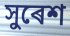
সুৰেশ